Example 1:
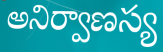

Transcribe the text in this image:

అనిర్వాణస్య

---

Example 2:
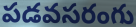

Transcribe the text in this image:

పడవసరంగు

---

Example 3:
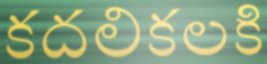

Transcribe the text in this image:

కదలికలకి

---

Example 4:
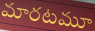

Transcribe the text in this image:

మారటమూ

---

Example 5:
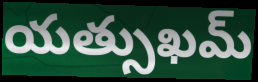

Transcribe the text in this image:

యత్సుఖమ్